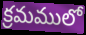
క్రమములో